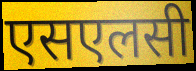
एसएलसी